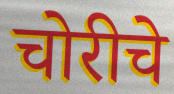
चोरीचे